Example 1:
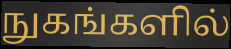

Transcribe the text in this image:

நுகங்களில்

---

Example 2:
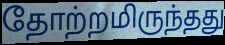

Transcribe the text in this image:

தோற்றமிருந்தது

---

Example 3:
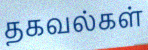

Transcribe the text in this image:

தகவல்கள்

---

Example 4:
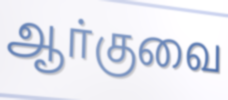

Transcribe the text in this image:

ஆர்குவை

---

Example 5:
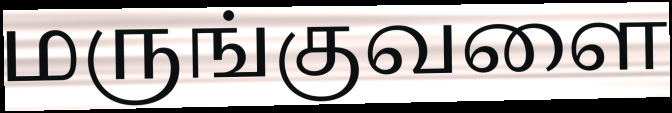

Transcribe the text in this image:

மருங்குவளை